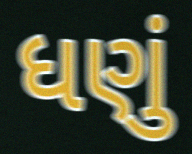
ધણું